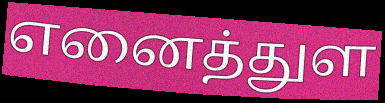
எனைத்துள